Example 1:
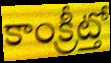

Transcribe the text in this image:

కాంక్రీట్తో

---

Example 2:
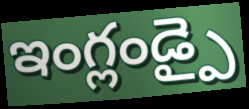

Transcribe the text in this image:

ఇంగ్లండ్పై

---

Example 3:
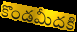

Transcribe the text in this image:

కొండమీదకి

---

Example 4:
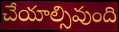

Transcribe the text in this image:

చేయాల్సివుంది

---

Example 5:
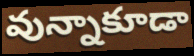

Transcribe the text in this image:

వున్నాకూడా